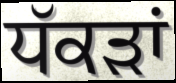
ਧੱਕੜਾਂ